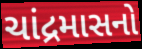
ચાંદ્રમાસનો